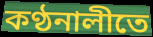
কণ্ঠনালীতে